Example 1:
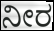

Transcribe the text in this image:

ನೀರ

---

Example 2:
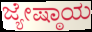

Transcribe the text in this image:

ಜ್ಯೇಷ್ಠಾಯ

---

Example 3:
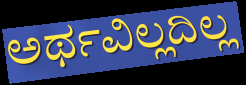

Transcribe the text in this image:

ಅರ್ಥವಿಲ್ಲದಿಲ್ಲ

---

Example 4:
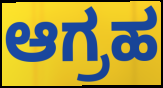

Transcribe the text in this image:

ಆಗ್ರಹ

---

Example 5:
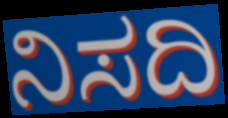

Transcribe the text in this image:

ನಿಸದಿ